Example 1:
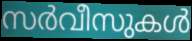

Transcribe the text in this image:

സർവീസുകൾ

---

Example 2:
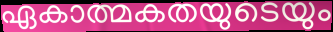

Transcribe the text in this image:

ഏകാത്മകതയുടെയും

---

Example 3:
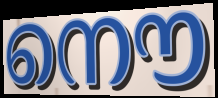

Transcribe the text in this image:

നൌ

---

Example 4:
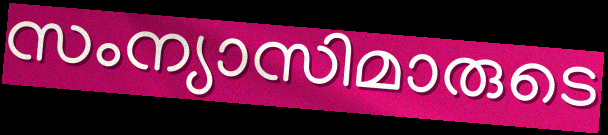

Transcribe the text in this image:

സംന്യാസിമാരുടെ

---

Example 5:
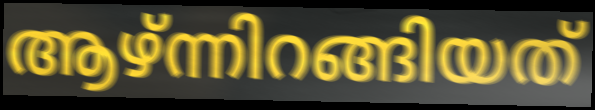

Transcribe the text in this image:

ആഴ്ന്നിറങ്ങിയത്